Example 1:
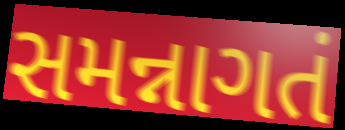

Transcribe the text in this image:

સમન્નાગતં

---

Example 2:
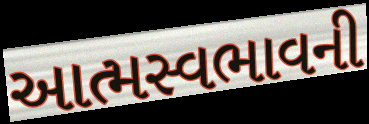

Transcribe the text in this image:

આત્મસ્વભાવની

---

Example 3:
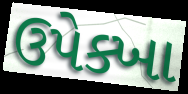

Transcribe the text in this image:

ઉપેક્ખા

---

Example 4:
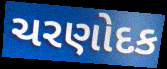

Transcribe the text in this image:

ચરણોદક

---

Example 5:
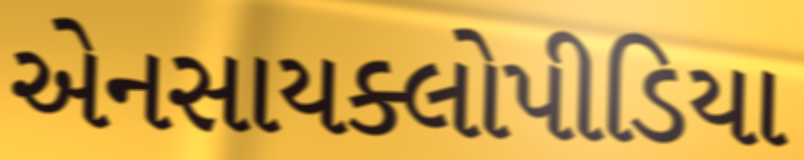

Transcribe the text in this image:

એનસાયક્લોપીડિયા